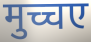
मुच्चए